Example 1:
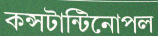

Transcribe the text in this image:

কন্সটান্টিনোপল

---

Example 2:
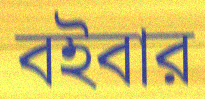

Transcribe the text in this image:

বইবার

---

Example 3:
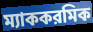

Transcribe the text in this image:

ম্যাককরমিক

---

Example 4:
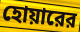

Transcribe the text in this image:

হোয়ারের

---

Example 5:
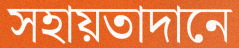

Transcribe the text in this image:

সহায়তাদানে